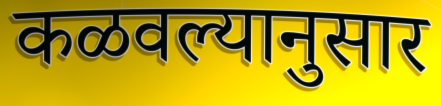
कळवल्यानुसार